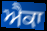
ਐਕਾ